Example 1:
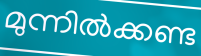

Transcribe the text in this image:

മുന്നിൽക്കണ്ട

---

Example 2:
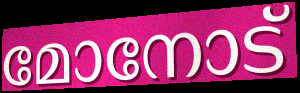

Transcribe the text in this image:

മോനോട്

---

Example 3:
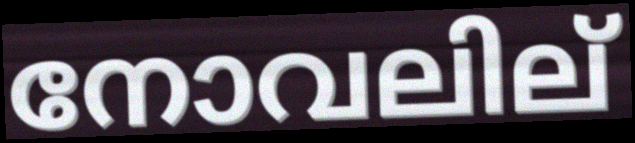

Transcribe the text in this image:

നോവലില്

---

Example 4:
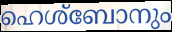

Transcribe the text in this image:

ഹെശ്ബോനും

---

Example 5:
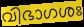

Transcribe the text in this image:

വിഭാഗശഃ